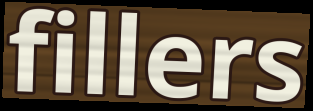
fillers